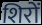
शिरों